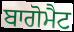
ਬਾਗੋਮੈਟ